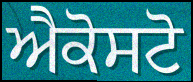
ਐਕੋਸਟੋ